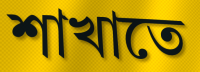
শাখাতে